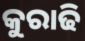
କୁରାଢି